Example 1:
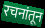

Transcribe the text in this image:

रचनांतून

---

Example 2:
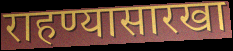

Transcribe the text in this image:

राहण्यासारखा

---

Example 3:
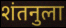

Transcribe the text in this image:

शंतनुला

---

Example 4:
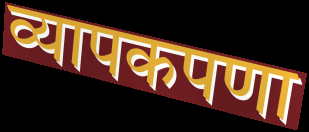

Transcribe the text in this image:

व्यापकपणा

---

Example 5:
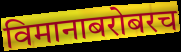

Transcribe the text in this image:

विमानाबरोबरच